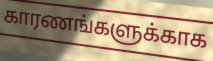
காரணங்களுக்காக